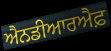
ਐਨਡੀਆਰਐਫ਼